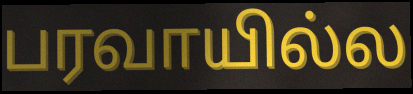
பரவாயில்ல